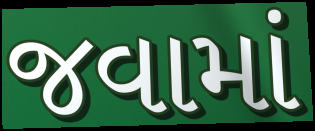
જવામાં